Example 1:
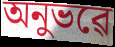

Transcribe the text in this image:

অনুভৱে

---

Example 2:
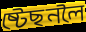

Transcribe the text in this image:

ষ্টেছনলৈ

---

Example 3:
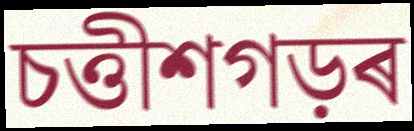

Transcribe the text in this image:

চত্তীশগড়ৰ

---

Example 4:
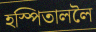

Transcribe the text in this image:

হস্পিতাললৈ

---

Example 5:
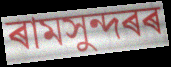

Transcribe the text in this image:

ৰামসুন্দৰৰ